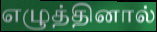
எழுத்தினால்